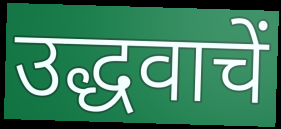
उद्धवाचें